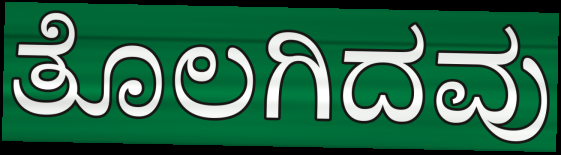
ತೊಲಗಿದವು